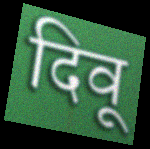
दिवू